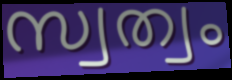
സ്വത്വം